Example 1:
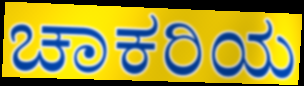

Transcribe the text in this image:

ಚಾಕರಿಯ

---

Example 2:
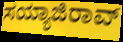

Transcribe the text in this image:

ಸಯ್ಯಾಜಿರಾವ್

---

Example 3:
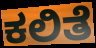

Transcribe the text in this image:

ಕಲಿತೆ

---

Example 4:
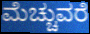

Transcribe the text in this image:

ಮೆಚ್ಚುವರೆ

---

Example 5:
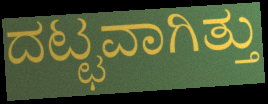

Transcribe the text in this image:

ದಟ್ಟವಾಗಿತ್ತು